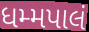
ધમ્મપાલં